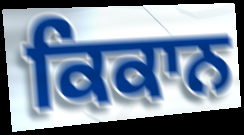
ਕਿਕਾਨ